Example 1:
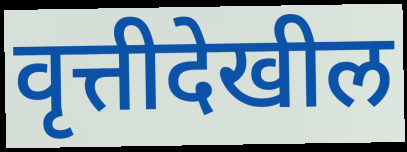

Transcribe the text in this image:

वृत्तीदेखील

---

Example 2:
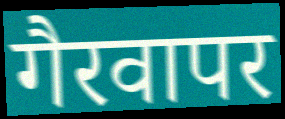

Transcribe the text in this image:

गैरवापर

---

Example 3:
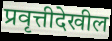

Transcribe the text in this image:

प्रवृत्तीदेखील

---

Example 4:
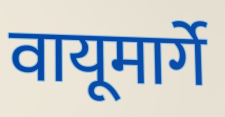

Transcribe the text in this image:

वायूमार्गे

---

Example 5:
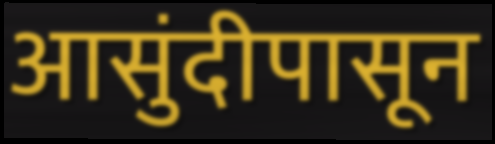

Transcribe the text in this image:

आसुंदीपासून